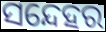
ସନ୍ଦେହର